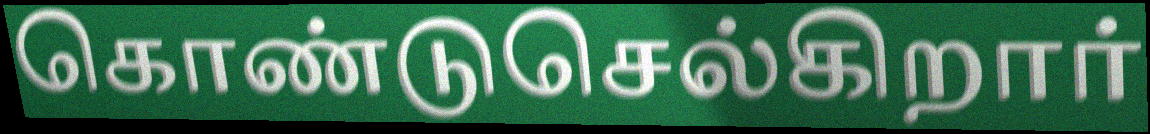
கொண்டுசெல்கிறார்